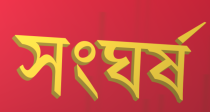
সংঘর্ষ